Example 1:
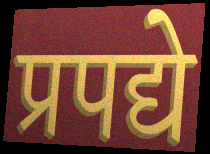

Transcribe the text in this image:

प्रपद्ये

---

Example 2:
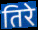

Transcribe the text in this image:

तिरे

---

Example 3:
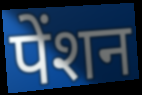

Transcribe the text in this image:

पेंशन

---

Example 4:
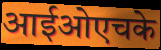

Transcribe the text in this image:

आईओएचके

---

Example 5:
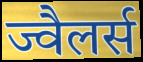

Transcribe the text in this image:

ज्वैलर्स